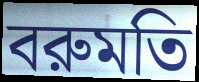
বরুমতি